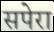
सपेरा